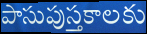
పాసుపుస్తకాలకు